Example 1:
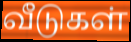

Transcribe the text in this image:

வீடுகள்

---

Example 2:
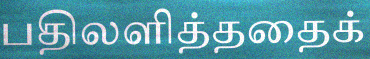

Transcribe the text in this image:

பதிலளித்ததைக்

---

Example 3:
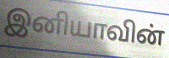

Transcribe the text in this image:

இனியாவின்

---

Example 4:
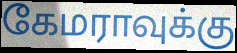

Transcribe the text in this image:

கேமராவுக்கு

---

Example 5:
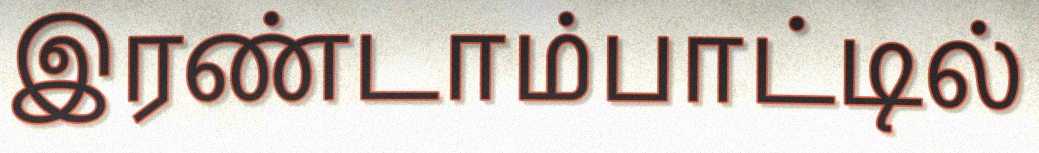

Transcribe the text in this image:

இரண்டாம்பாட்டில்